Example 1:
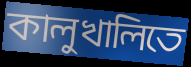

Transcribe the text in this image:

কালুখালিতে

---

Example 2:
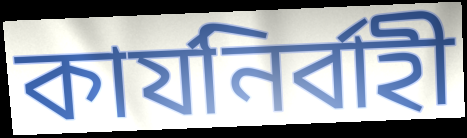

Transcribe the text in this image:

কার্যনির্বাহী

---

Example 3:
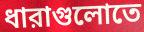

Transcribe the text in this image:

ধারাগুলোতে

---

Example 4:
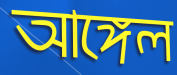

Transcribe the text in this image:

আঙ্গেল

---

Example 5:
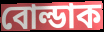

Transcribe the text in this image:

বোল্ডাক